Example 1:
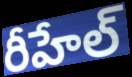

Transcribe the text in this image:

రీహేల్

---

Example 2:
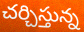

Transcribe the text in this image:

చర్చిస్తున్న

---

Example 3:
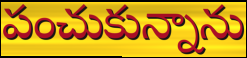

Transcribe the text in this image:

పంచుకున్నాను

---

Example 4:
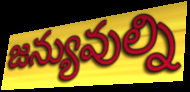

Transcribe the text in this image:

జన్యువుల్ని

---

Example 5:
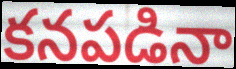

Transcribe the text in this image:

కనపడినా